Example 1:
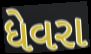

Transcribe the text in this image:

ધેવરા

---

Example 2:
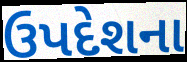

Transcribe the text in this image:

ઉપદેશના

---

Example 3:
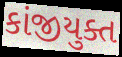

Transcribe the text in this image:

કાંજીયુક્ત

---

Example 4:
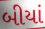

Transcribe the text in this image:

બીયાં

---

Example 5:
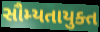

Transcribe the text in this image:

સૌમ્યતાયુક્ત